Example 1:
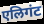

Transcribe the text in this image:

एलिगंट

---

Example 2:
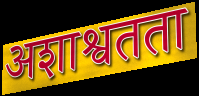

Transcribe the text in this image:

अशाश्वतता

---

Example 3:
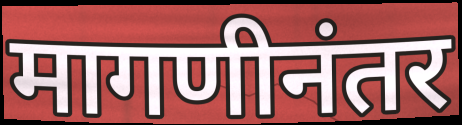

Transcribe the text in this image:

मागणीनंतर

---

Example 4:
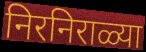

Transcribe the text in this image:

निरनिराळ्या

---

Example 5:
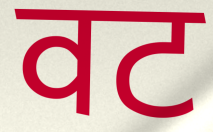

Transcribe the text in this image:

वट